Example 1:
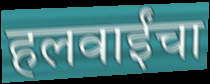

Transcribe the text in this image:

हलवाईंचा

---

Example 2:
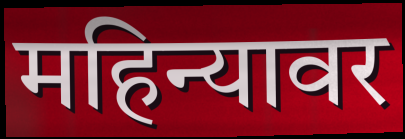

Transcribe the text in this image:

महिन्यावर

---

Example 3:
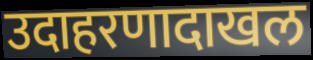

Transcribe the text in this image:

उदाहरणादाखल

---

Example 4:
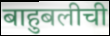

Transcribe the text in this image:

बाहुबलीची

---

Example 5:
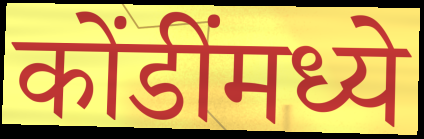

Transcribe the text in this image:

कोंडींमध्ये